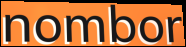
nombor